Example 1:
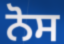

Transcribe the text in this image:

ਨੋਸ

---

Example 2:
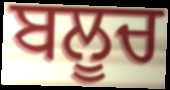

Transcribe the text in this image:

ਬਲੂਚ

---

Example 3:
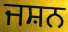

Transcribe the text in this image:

ਜਸ਼ਨ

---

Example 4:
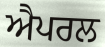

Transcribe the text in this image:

ਐਪਰਲ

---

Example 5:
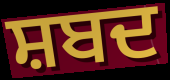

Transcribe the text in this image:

ਸ਼ਬਦ